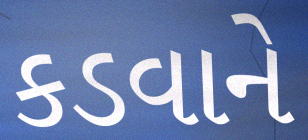
કડવાને